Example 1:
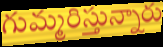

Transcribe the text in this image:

గుమ్మరిస్తున్నారు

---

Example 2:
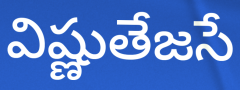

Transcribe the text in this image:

విష్ణుతేజసే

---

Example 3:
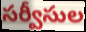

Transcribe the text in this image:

సర్వీసుల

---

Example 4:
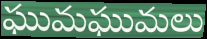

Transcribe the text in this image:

ఘుమఘుమలు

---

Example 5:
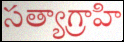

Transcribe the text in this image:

సత్యాగ్రాహి